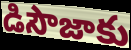
డిసౌజాకు